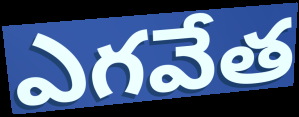
ఎగవేత